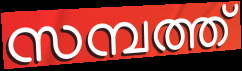
സമ്പത്ത്